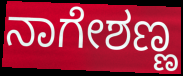
ನಾಗೇಶಣ್ಣ